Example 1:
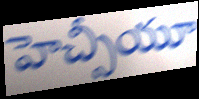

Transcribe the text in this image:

హెచ్సీయూ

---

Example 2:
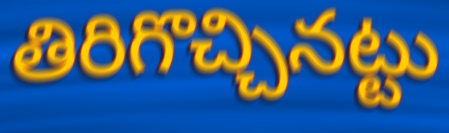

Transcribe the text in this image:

తిరిగొచ్చినట్టు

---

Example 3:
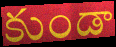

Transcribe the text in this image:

కుండా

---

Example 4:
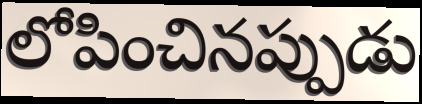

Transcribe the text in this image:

లోపించినప్పుడు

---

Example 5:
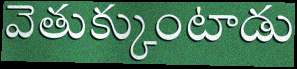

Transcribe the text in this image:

వెతుక్కుంటాడు